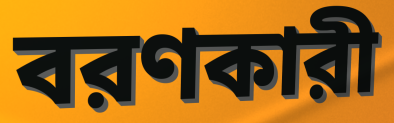
বরণকারী